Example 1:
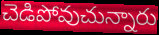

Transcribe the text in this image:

చెడిపోవుచున్నారు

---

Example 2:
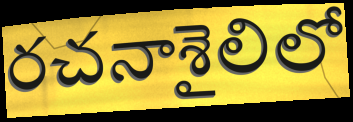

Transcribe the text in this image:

రచనాశైలిలో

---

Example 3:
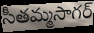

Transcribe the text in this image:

సీతమ్మసాగర్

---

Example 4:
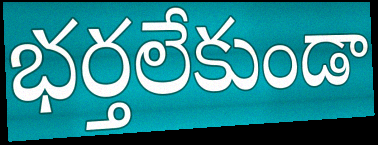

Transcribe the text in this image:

భర్తలేకుండా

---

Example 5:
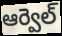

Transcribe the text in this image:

ఆర్వెల్